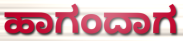
ಹಾಗಂದಾಗ